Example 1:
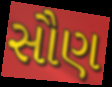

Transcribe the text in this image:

સૌણ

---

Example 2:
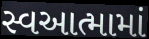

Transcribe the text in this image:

સ્વઆત્મામાં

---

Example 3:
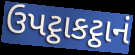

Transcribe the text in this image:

ઉપટ્ઠાકટ્ઠાનં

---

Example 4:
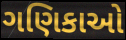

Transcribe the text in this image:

ગણિકાઓ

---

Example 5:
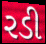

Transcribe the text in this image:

રડી